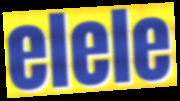
elele